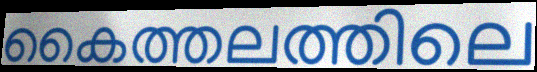
കൈത്തലത്തിലെ